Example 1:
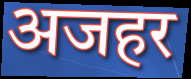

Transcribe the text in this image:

अजहर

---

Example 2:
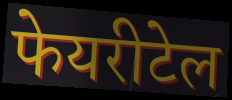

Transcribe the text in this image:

फेयरीटेल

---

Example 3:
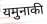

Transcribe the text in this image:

यमुनाकी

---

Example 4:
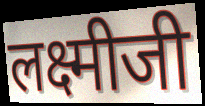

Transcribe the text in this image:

लक्ष्मीजी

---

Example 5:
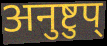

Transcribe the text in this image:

अनुष्टुप्